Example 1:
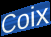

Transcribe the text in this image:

Coix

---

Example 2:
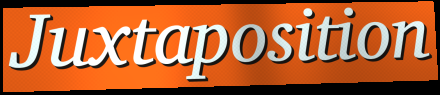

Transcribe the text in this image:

Juxtaposition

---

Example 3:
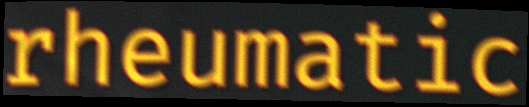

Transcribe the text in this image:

rheumatic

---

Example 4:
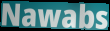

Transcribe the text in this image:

Nawabs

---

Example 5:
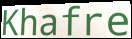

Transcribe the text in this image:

Khafre